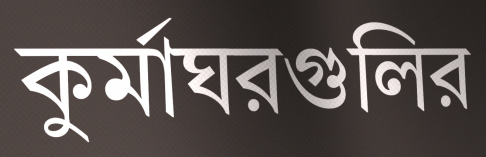
কুর্মাঘরগুলির